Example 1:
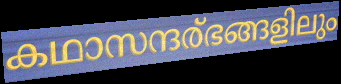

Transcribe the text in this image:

കഥാസന്ദര്ഭങ്ങളിലും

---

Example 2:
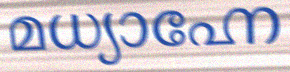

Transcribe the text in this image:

മധ്യാഹ്നേ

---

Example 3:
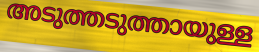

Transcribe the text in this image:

അടുത്തടുത്തായുള്ള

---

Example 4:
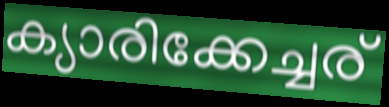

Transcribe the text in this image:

ക്യാരിക്കേച്ചര്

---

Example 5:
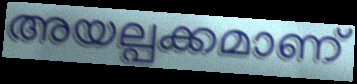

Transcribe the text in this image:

അയല്പക്കമാണ്